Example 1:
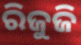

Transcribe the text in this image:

ରିଜୁଜି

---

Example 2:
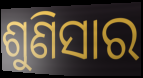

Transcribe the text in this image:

ଶୁଣିସାର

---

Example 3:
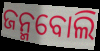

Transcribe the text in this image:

ଜନ୍ମବୋଲି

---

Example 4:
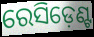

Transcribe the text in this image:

ରେସିଡ଼େଣ୍ଟ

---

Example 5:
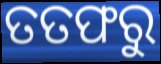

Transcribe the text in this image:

ତତଫରୁ